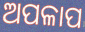
ଅପଳାପ